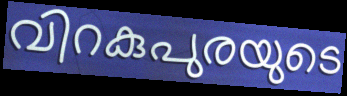
വിറകുപുരയുടെ